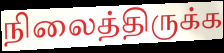
நிலைத்திருக்க